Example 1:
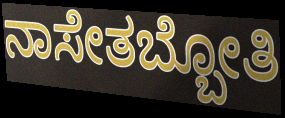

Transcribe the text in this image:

ನಾಸೇತಬ್ಬೋತಿ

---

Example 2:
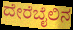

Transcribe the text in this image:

ದೇರೆಬೈಲಿನ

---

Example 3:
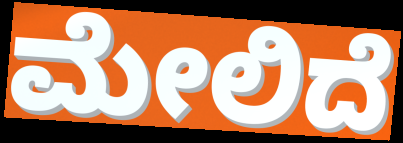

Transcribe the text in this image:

ಮೇಲಿದೆ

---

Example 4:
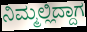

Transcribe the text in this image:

ನಿಮ್ಮಲ್ಲಿದ್ದಾಗ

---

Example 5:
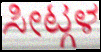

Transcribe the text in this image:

ಸೀಟ್ಗಳ